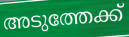
അടുത്തേക്ക്